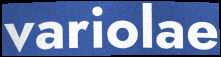
variolae